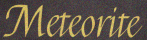
Meteorite